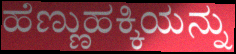
ಹೆಣ್ಣುಹಕ್ಕಿಯನ್ನು